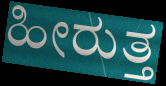
ಹೀರುತ್ತ